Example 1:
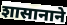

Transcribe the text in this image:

शासानाने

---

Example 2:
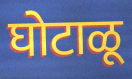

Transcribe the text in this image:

घोटाळू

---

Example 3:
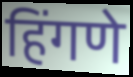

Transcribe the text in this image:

हिंगणे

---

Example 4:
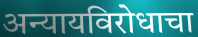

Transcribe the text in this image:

अन्यायविरोधाचा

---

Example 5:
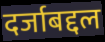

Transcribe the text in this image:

दर्जाबद्दल